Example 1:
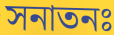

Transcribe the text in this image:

সনাতনঃ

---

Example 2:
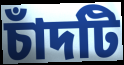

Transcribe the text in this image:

চাঁদটি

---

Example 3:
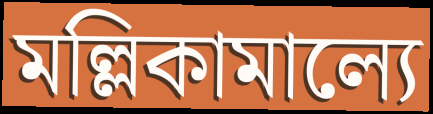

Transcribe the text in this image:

মল্লিকামাল্যে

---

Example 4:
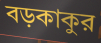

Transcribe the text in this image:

বড়কাকুর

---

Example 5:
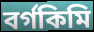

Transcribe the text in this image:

বর্গকিমি